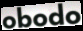
obodo